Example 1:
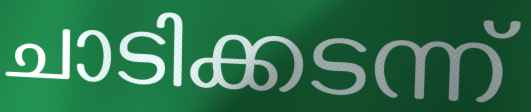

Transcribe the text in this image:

ചാടിക്കടന്ന്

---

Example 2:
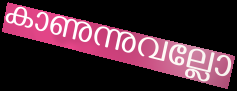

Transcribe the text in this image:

കാണുന്നുവല്ലോ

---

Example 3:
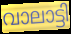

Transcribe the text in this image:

വാലാട്ടി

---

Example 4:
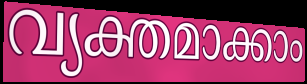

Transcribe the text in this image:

വ്യക്തമാക്കാം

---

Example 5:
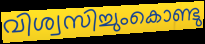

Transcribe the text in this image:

വിശ്വസിച്ചുംകൊണ്ടു